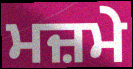
ਮਜ਼ਮੇ